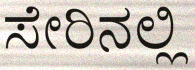
ಸೇರಿನಲ್ಲಿ